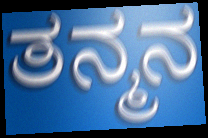
ತನ್ಮನ